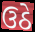
ઉઠે